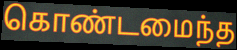
கொண்டமைந்த